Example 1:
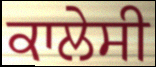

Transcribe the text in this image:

ਕਾਲੇਸੀ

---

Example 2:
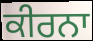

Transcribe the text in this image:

ਕੀਰਨਾ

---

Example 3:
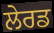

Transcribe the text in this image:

ਲੇਰਡ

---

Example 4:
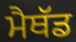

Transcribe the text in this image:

ਮੈਥੱਡ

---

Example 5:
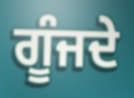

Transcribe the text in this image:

ਗੂੰਜਦੇ